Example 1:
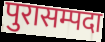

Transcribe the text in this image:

पुरासम्पदा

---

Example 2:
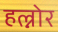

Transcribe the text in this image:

हल्नोर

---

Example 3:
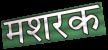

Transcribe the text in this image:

मशरक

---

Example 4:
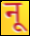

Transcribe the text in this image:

नू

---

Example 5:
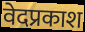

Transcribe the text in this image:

वेदप्रकाश